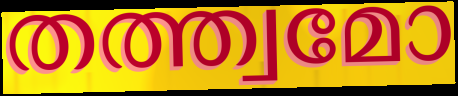
തത്ത്വമോ